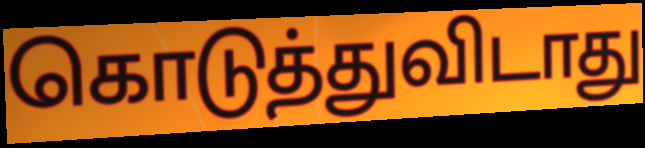
கொடுத்துவிடாது